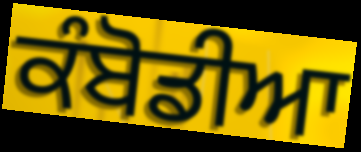
ਕੰਬੋਡੀਆ